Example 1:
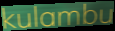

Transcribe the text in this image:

kulambu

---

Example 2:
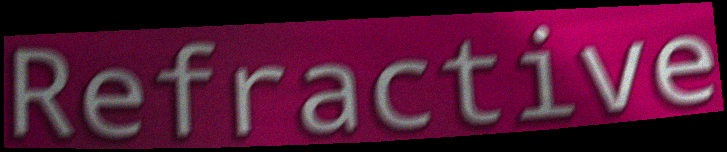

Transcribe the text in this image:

Refractive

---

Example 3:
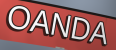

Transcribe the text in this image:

OANDA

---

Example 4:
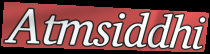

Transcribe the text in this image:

Atmsiddhi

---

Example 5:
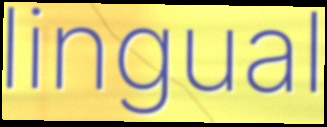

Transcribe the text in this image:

lingual